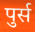
पुर्स